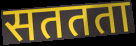
सततता